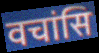
वचांसि